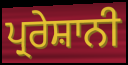
ਪ੍ਰਰੇਸ਼ਾਨੀ